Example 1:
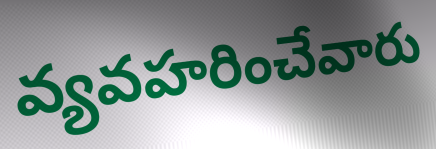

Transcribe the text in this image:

వ్యవహరించేవారు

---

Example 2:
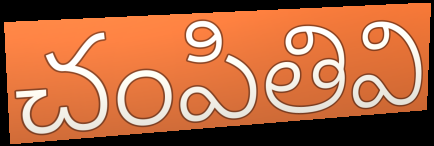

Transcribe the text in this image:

చంపితివి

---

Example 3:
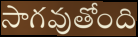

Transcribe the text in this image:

సాగవుతోంది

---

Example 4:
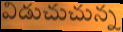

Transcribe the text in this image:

విడుచుచున్న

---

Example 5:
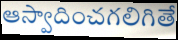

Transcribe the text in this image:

ఆస్వాదించగలిగితే